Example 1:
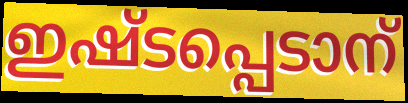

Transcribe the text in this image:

ഇഷ്ടപ്പെടാന്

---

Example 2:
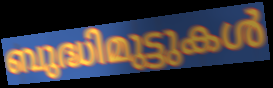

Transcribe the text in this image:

ബുദ്ധിമുട്ടുകൾ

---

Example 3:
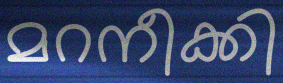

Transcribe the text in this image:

മറനീക്കി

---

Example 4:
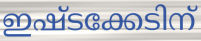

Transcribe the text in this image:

ഇഷ്ടക്കേടിന്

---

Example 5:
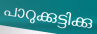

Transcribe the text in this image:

പാറുക്കുട്ടിക്കു